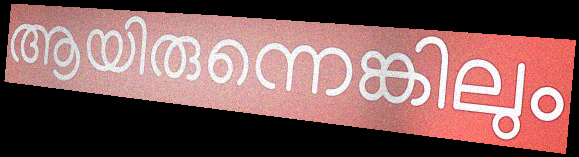
ആയിരുന്നെങ്കിലും